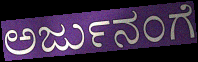
ಅರ್ಜುನಂಗೆ